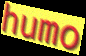
humo